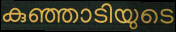
കുഞ്ഞാടിയുടെ